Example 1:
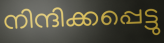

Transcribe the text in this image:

നിന്ദിക്കപ്പെട്ടു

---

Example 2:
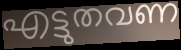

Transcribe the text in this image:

എട്ടുതവണ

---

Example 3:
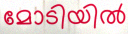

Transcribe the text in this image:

മോടിയിൽ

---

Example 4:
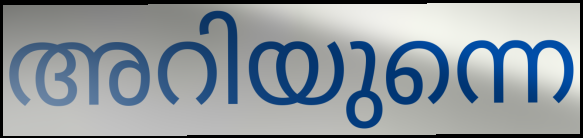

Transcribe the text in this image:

അറിയുന്നെ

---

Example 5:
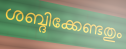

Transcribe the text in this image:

ശബ്ദിക്കേണ്ടതും